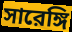
সারেঙ্গি